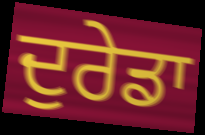
ਦੁਰੇਡਾ